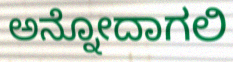
ಅನ್ನೋದಾಗಲಿ